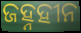
ଜହ୍ନହୀନ